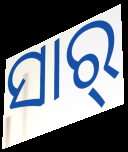
ସାର୍